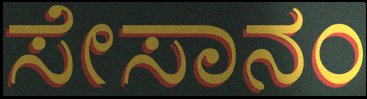
ಸೇಸಾನಂ